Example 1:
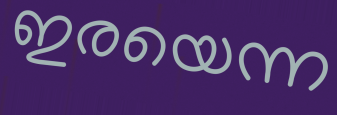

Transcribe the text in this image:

ഇരയെന്ന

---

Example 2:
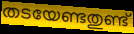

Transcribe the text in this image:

തടയേണ്ടതുണ്ട്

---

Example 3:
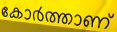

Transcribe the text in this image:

കോർത്താണ്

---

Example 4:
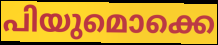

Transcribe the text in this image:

പിയുമൊക്കെ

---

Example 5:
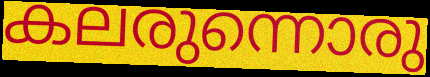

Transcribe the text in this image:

കലരുന്നൊരു